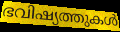
ഭവിഷ്യത്തുകൾ